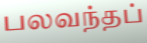
பலவந்தப்